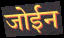
जोईन